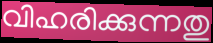
വിഹരിക്കുന്നതു